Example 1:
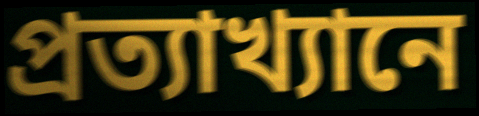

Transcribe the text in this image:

প্রত্যাখ্যানে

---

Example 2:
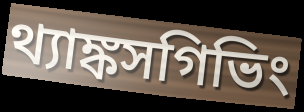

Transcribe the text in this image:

থ্যাঙ্কসগিভিং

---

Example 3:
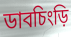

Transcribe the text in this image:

ডাবচিংড়ি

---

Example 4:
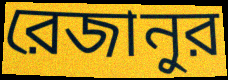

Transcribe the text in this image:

রেজানুর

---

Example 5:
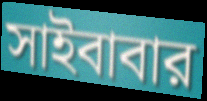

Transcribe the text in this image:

সাইবাবার